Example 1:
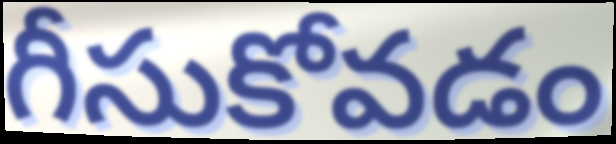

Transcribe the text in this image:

గీసుకోవడం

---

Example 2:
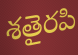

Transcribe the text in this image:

శతైరపి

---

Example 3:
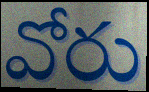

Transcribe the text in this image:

వోరు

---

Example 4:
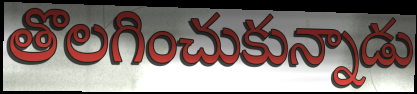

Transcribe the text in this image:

తొలగించుకున్నాడు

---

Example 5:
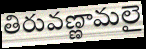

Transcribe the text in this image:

తిరువణ్ణామలై